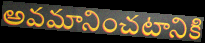
అవమానించటానికి